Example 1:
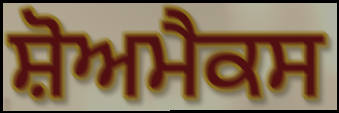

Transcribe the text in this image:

ਸ਼ੋਅਮੈਕਸ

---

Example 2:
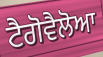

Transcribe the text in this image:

ਟੈਗੋਵੈਲੋਆ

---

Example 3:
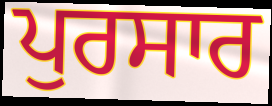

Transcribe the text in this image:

ਪੁਰਸਾਰ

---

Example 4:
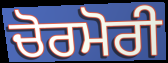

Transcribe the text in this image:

ਚੋਰਮੋਰੀ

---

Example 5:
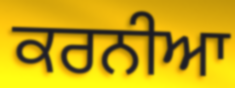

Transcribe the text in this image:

ਕਰਨੀਆ